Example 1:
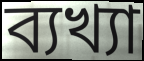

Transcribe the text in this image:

ব্যখ্যা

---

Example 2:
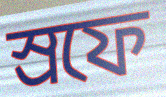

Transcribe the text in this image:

স্রফে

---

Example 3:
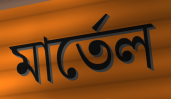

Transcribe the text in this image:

মার্তেল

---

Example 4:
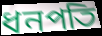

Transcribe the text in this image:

ধনপতি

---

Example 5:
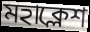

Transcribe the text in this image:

মহাক্লেশ